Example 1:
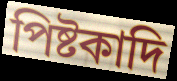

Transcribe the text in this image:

পিষ্টকাদি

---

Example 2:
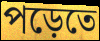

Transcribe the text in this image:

পড়েতে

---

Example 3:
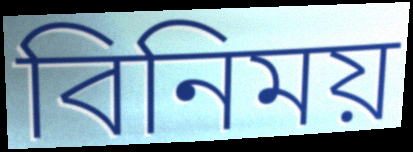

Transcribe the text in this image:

বিনিময়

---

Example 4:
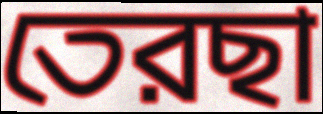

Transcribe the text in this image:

তেরছা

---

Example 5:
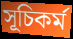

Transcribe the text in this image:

সূচিকর্ম